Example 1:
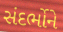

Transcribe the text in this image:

સંદર્ભોને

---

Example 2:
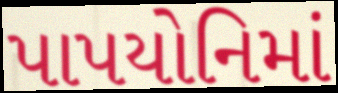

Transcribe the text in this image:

પાપયોનિમાં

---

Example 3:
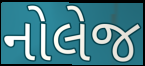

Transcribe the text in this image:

નોલેજ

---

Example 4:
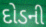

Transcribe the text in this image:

દોડની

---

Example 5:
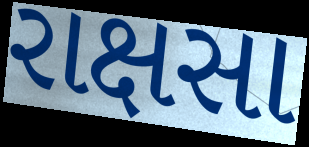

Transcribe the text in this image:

રાક્ષસા